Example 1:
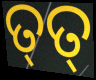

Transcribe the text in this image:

ତ୍‌ତ୍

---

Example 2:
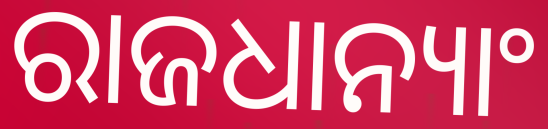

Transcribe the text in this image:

ରାଜଧାନ୍ୟାଂ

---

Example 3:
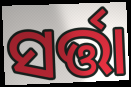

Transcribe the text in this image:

ସର୍ତ୍ତା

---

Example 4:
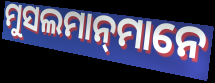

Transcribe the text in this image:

ମୁସଲମାନ୍‌ମାନେ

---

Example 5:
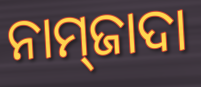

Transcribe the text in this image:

ନାମ୍‍ଜାଦା